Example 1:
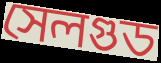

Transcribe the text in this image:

সেলগুড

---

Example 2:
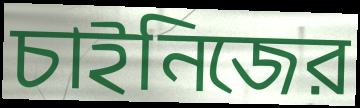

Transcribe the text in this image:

চাইনিজের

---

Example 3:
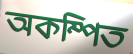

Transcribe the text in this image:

অকম্পিত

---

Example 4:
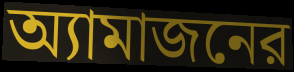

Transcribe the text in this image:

অ্যামাজনের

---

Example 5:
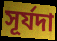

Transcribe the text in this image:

সূর্যদা